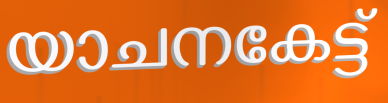
യാചനകേട്ട്